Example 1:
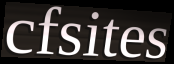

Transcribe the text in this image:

cfsites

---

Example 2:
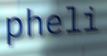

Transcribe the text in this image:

pheli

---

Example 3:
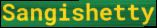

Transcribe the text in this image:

Sangishetty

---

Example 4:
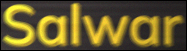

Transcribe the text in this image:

Salwar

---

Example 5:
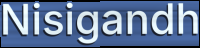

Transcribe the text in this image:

Nisigandh